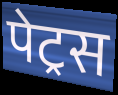
पेट्रस